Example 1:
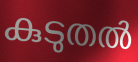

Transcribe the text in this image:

കുടുതൽ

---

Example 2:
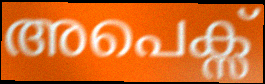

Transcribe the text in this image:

അപെക്സ്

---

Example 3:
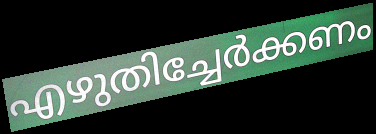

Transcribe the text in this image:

എഴുതിച്ചേർക്കണം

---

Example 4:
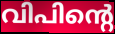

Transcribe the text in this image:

വിപിന്റെ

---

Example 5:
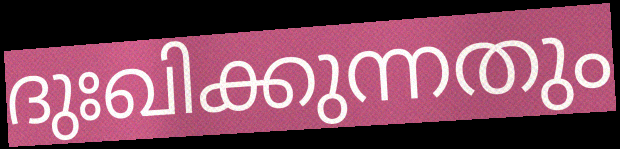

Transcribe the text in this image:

ദുഃഖിക്കുന്നതും